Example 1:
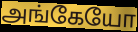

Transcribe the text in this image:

அங்கேயோ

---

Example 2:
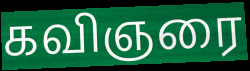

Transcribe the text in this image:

கவிஞரை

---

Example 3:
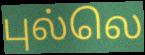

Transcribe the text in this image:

புல்லெ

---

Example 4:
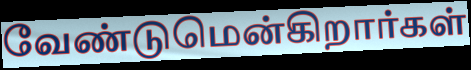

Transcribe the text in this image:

வேண்டுமென்கிறார்கள்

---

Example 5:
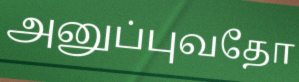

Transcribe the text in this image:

அனுப்புவதோ